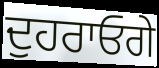
ਦੁਹਰਾਓਗੇ